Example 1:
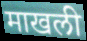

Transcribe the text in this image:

माखली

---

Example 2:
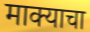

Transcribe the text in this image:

माक्याचा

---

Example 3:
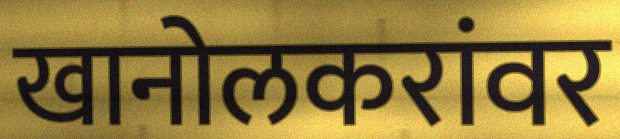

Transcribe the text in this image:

खानोलकरांवर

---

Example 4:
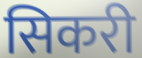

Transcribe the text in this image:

सिकरी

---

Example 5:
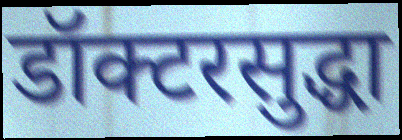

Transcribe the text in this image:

डॉक्टरसुद्धा